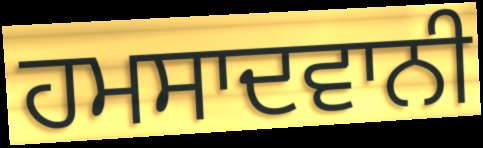
ਹਮਸਾਦਵਾਨੀ